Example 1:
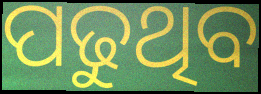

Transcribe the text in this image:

ପଢୁଥିବ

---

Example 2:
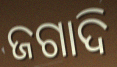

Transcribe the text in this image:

ଜଗାଦି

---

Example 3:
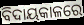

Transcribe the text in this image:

ବିଦାୟକାଳରେ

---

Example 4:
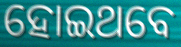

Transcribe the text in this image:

ହୋଇଥବେ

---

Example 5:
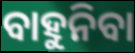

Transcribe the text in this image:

ବାହୁନିବା